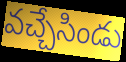
వచ్చేసిండు